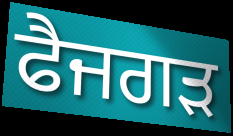
ਫੈਜਗੜ